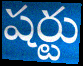
షర్టు